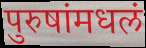
पुरुषांमधलं